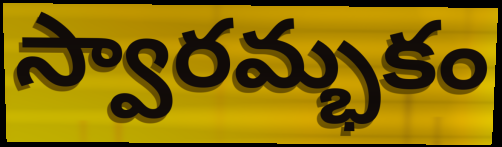
స్వారమ్భకం